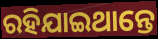
ରହିଯାଇଥାନ୍ତେ